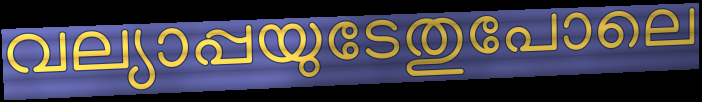
വല്യാപ്പയുടേതുപോലെ